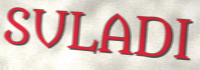
SULADI